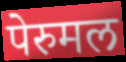
पेरुमल